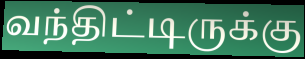
வந்திட்டிருக்கு